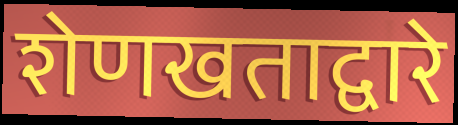
शेणखताद्वारे